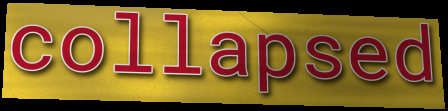
collapsed